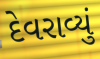
દેવરાવ્યું